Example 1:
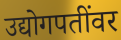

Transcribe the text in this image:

उद्योगपतींवर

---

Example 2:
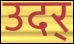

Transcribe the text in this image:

उदर्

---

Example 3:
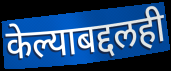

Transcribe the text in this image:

केल्याबद्दलही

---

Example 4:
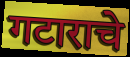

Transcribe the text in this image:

गटाराचे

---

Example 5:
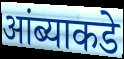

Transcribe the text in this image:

आंब्याकडे